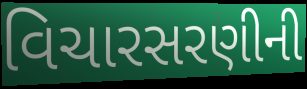
વિચારસરણીની